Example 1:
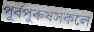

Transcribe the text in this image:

পূৰ্বপুৰুষসকলে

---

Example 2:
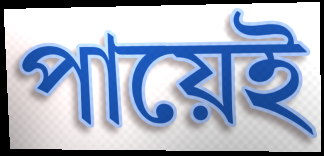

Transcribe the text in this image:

পায়েই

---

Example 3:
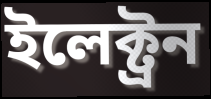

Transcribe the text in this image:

ইলেক্ট্ৰন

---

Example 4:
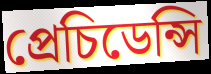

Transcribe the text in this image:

প্ৰেচিডেন্সি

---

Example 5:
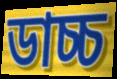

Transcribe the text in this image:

ডাচ্চ